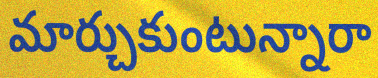
మార్చుకుంటున్నారా